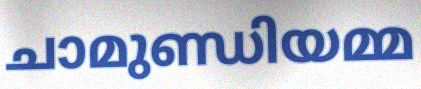
ചാമുണ്ഡിയമ്മ